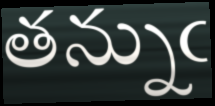
తన్నుఁ